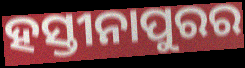
ହସ୍ତୀନାପୁରର